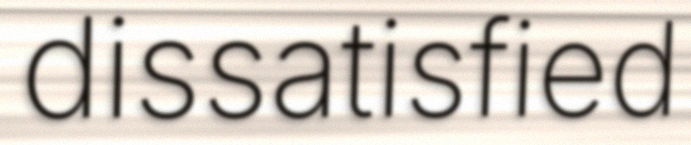
dissatisfied